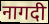
नागदी